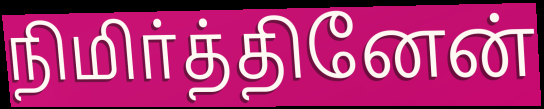
நிமிர்த்தினேன்